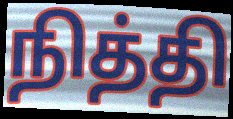
நித்தி